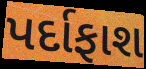
પર્દાફાશ